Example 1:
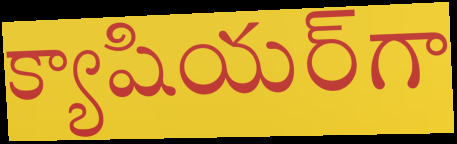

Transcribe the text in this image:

క్యాషియర్‌గా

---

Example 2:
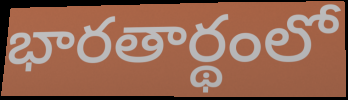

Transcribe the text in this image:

భారతార్థంలో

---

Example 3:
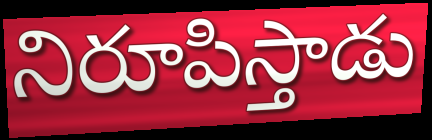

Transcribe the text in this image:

నిరూపిస్తాడు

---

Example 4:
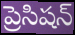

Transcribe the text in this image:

ప్రెసిషన్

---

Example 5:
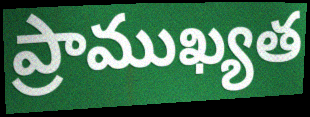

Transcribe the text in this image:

ప్రాముఖ్యత